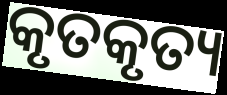
କୃତକୃତ୍ୟ